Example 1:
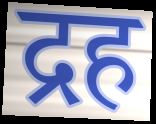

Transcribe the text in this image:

द्रह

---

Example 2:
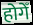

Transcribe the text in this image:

होगेँ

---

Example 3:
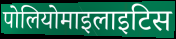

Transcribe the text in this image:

पोलियोमाइलाइटिस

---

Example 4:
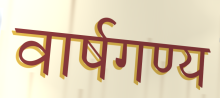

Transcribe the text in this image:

वार्षगण्य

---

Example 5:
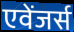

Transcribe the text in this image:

एवेंजर्स